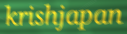
krishjapan